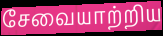
சேவையாற்றிய